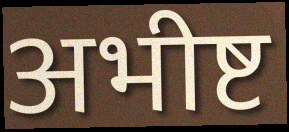
अभीष्ट